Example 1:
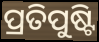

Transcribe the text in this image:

ପ୍ରତିପୁଷ୍ଟି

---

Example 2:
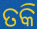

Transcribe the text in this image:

ତକି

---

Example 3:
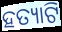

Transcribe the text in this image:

ହତ୍ୟାଟି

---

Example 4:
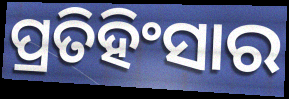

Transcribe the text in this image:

ପ୍ରତିହିଂସାର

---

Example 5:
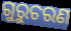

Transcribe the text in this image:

ଗୁରୁଚରଣ